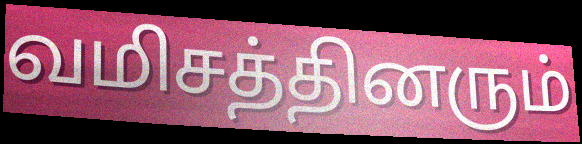
வமிசத்தினரும்